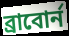
ব্রাবোর্ন